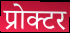
प्रोक्टर